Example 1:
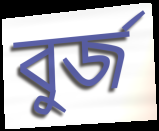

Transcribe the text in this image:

বুর্জ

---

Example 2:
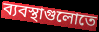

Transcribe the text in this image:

ব্যবস্থাগুলোতে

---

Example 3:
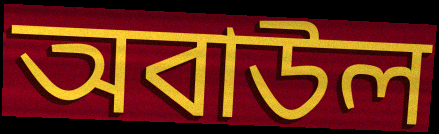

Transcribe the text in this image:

অবাউল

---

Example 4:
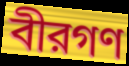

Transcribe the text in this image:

বীরগণ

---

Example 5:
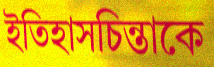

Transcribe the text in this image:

ইতিহাসচিন্তাকে